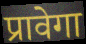
प्रावेगा